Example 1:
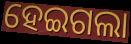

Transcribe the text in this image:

ହେଇଗଲା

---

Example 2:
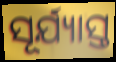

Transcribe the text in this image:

ସୂର୍ଯ୍ୟାସ୍ତ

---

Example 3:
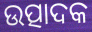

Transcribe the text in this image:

ଉତ୍ପାଦକ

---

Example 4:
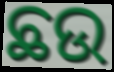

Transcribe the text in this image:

ଛଉ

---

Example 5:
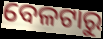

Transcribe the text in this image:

ବେଳଟାରୁ